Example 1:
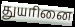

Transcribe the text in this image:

துயரினை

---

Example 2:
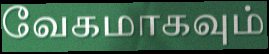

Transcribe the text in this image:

வேகமாகவும்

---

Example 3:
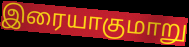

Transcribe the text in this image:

இரையாகுமாறு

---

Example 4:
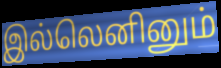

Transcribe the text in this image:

இல்லெனினும்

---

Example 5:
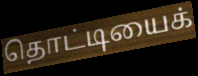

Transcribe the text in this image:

தொட்டியைக்